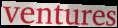
ventures